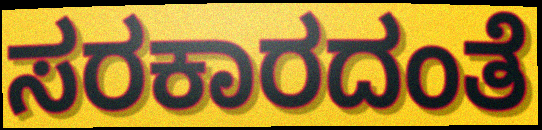
ಸರಕಾರದಂತೆ